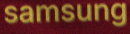
samsung